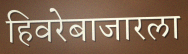
हिवरेबाजारला